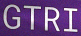
GTRI